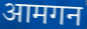
आमगन